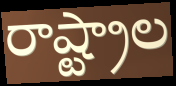
రాష్ట్రాల